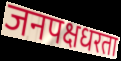
जनपक्षधरता